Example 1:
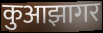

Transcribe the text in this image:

कुआझागर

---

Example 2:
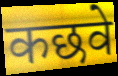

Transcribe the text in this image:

कछवे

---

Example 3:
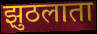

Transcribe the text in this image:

झुठलाता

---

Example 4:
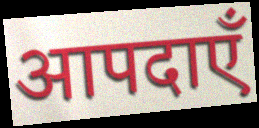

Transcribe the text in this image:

आपदाएँ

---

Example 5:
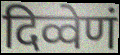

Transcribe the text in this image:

दिव्वेणं